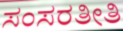
ಸಂಸರತೀತಿ